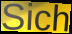
Sich